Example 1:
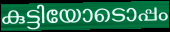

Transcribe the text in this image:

കുട്ടിയോടൊപ്പം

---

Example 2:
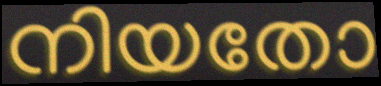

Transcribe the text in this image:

നിയതോ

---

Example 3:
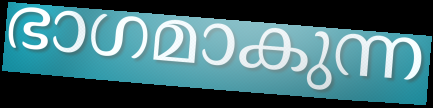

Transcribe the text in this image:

ഭാഗമാകുന്ന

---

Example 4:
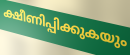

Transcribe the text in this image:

ക്ഷീണിപ്പിക്കുകയും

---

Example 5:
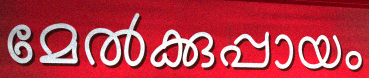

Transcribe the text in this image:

മേൽക്കുപ്പായം